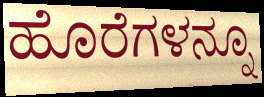
ಹೊರೆಗಳನ್ನೂ